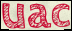
uac